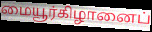
மையூர்கிழானைப்